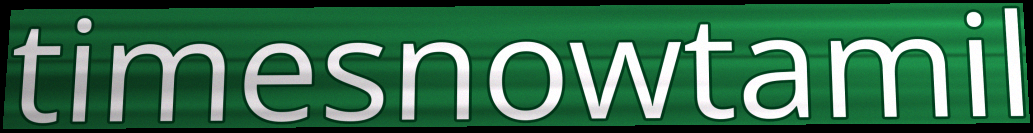
timesnowtamil